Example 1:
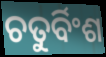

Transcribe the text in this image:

ଚତୁର୍ବିଂଶ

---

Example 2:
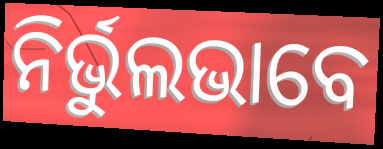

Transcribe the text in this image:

ନିର୍ଭୁଲଭାବେ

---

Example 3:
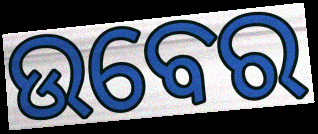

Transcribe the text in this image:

ଉବେର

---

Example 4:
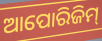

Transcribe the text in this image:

ଆପୋରିଜିମ୍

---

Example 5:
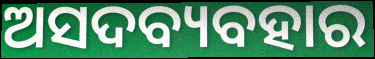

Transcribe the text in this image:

ଅସଦବ୍ୟବହାର